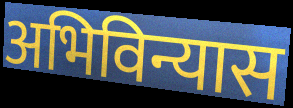
अभिविन्यास